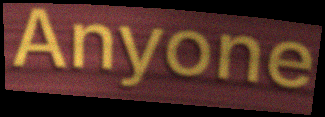
Anyone